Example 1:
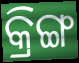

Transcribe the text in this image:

କ୍ରିଙ୍ଗ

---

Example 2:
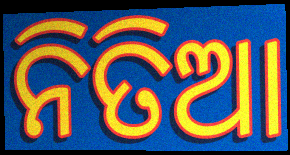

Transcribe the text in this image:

ନିତିଆ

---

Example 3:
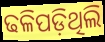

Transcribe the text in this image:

ଢଳିପଡ଼ିଥିଲି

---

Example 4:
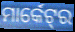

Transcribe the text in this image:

ମାର୍କେଟ୍‌ର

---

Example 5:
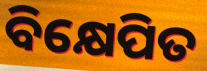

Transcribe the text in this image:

ବିକ୍ଷେପିତ